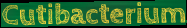
Cutibacterium